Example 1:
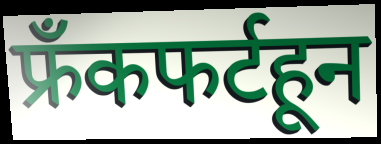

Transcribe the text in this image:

फ्रँकफर्टहून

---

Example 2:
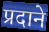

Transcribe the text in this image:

प्रदाने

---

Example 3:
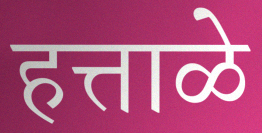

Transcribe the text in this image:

हत्ताळे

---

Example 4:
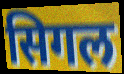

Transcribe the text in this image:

सिगल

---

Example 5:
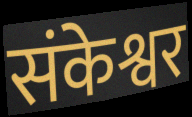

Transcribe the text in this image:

संकेश्वर